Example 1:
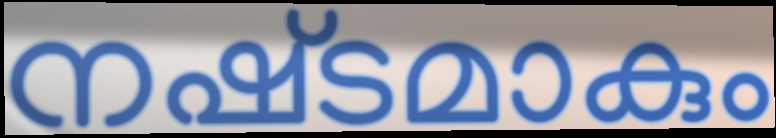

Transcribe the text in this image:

നഷ്‌ടമാകും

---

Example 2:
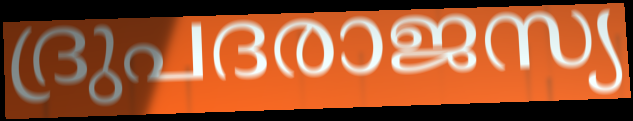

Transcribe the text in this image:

ദ്രുപദരാജസ്യ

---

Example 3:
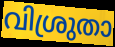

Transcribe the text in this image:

വിശ്രുതാ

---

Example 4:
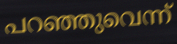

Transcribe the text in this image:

പറഞ്ഞുവെന്ന്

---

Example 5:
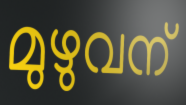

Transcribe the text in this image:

മുഴുവന്